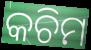
କଚିମ